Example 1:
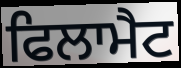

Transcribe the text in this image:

ਫਿਲਾਮੈਟ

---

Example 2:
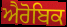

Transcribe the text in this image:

ਐਰੋਬਿਕ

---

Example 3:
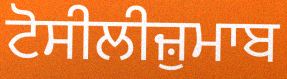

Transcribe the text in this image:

ਟੋਸੀਲੀਜ਼ੁਮਾਬ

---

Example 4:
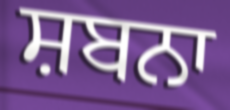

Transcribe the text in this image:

ਸ਼ਬਨਾ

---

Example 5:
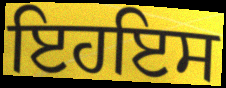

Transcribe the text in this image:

ਇਹਇਸ